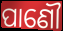
ପାଣୌ